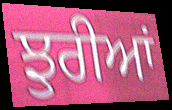
ਝੁਰੀਆਂ